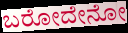
ಬರೋದೇನೋ